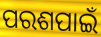
ପରଶପାଇଁ